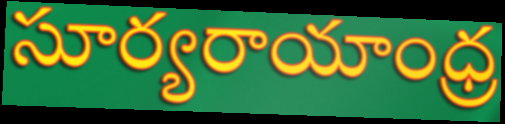
సూర్యరాయాంధ్ర